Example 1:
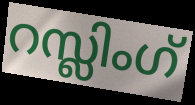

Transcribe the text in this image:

റസ്ലിംഗ്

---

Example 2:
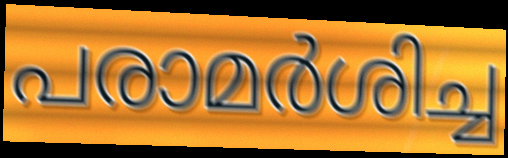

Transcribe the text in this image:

പരാമർശിച്ച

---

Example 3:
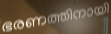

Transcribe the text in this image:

ഭരണത്തിനായി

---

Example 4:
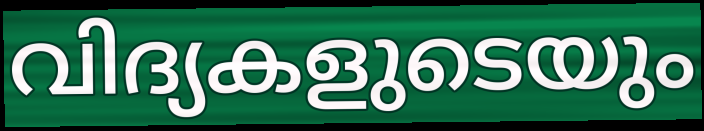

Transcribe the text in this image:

വിദ്യകളുടെയും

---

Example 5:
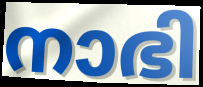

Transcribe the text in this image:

നാഭി